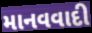
માનવવાદી